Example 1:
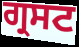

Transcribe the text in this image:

ਗ੍ਰਸਟ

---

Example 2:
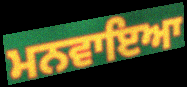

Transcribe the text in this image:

ਮਨਵਾਇਆ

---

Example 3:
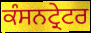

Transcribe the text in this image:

ਕੰਸਨਟ੍ਰੇਟਰ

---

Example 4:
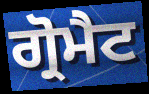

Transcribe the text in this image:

ਗ੍ਰੋਮੈਟ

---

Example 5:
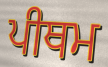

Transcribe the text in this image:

ਪੀਥਮ